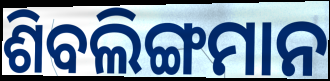
ଶିବଲିଙ୍ଗମାନ